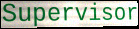
Supervisor